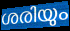
ശരിയും